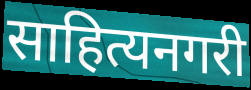
साहित्यनगरी